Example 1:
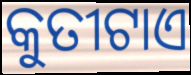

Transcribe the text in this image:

କୁତୀଟାଏ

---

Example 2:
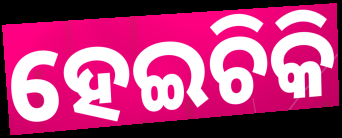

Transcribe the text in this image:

ହେଇଚିକି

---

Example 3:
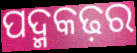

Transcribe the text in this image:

ପଦ୍ମକଢ଼ର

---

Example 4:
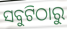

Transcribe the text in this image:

ସବୁଟିଠାରୁ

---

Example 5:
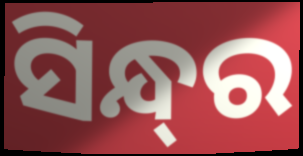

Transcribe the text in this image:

ସିନ୍ଧ୍‌ର